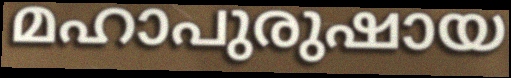
മഹാപുരുഷായ